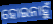
ହୋଇନାହୁଁ